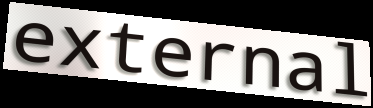
external